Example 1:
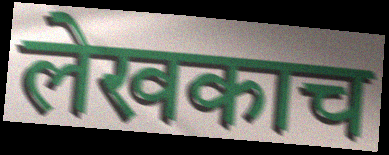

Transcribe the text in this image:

लेखकाच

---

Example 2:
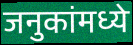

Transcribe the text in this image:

जनुकांमध्ये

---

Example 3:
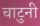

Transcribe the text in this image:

चाटुनी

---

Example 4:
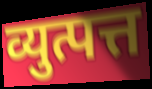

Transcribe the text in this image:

व्युत्पत्त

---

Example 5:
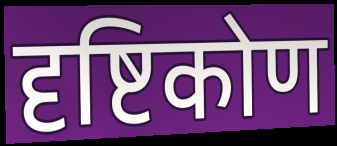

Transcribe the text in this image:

दृष्टिकोण